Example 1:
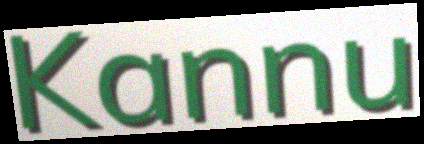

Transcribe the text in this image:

Kannu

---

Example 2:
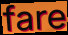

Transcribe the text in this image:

fare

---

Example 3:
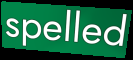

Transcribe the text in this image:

spelled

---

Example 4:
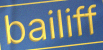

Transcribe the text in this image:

bailiff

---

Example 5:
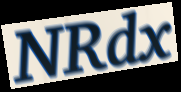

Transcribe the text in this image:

NRdx